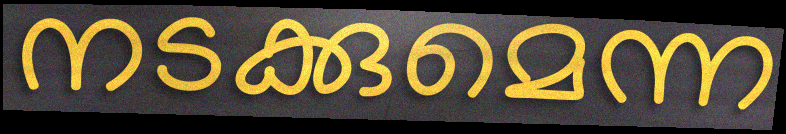
നടക്കുമെന്ന